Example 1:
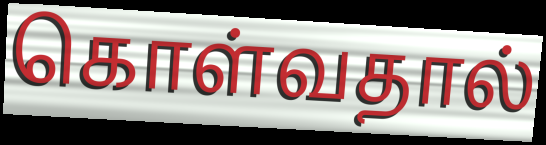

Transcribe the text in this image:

கொள்வதால்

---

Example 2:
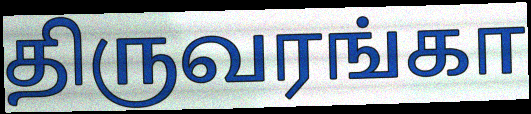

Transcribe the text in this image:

திருவரங்கா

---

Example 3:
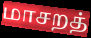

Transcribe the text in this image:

மாசறத்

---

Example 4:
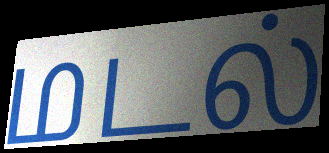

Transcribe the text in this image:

மடல்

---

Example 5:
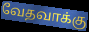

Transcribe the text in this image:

வேதவாக்கு